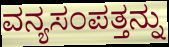
ವನ್ಯಸಂಪತ್ತನ್ನು